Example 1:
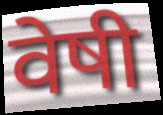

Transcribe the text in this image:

वेषी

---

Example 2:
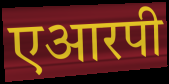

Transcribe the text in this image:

एआरपी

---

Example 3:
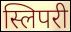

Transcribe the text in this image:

स्लिपरी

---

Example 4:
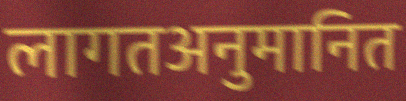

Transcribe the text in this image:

लागतअनुमानित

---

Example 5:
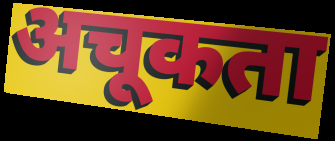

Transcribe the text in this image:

अचूकता